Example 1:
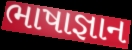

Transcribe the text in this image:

ભાષાજ્ઞાન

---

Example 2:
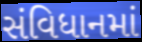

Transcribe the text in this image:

સંવિધાનમાં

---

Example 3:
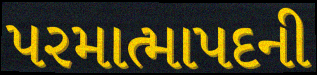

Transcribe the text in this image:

પરમાત્માપદની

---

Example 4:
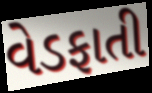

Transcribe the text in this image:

વેડફાતી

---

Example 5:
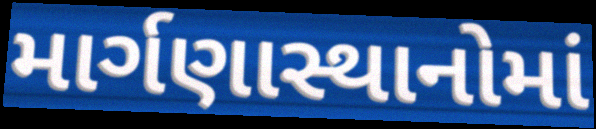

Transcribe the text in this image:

માર્ગણાસ્થાનોમાં